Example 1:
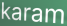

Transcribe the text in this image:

karam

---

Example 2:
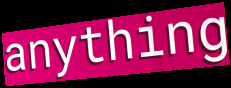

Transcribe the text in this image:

anything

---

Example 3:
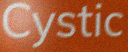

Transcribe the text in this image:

Cystic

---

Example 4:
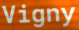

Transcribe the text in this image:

Vigny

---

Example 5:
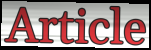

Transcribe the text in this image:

Article